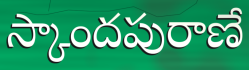
స్కాందపురాణే